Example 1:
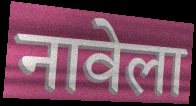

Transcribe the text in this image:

नावेला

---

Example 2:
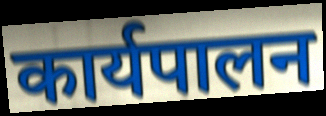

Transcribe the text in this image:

कार्यपालन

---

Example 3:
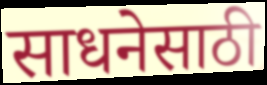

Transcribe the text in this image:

साधनेसाठी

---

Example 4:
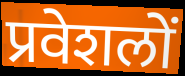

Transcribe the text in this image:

प्रवेशलों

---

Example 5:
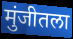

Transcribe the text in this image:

मुंजीतला